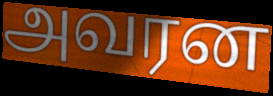
அவரன